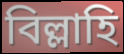
বিল্লাহি